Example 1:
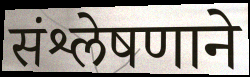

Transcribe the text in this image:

संश्लेषणाने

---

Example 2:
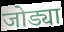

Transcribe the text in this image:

जोड्या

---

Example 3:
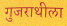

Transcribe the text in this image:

गुजराथीला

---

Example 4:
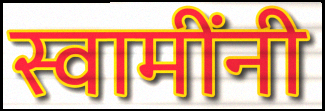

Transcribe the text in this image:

स्वामींनी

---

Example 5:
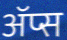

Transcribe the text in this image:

ॲप्स